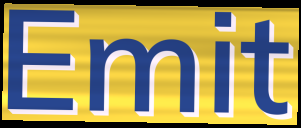
Emit